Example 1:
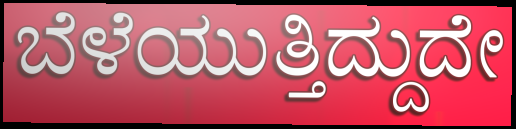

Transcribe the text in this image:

ಬೆಳೆಯುತ್ತಿದ್ದುದೇ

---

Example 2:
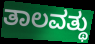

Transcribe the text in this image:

ತಾಲವತ್ಥು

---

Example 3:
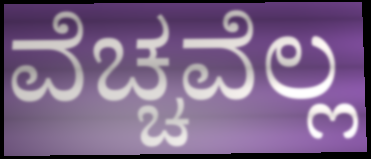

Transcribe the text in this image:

ವೆಚ್ಚವೆಲ್ಲ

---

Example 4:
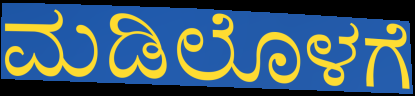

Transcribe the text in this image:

ಮಡಿಲೊಳಗೆ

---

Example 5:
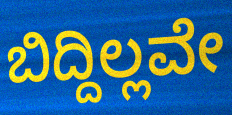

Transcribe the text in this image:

ಬಿದ್ದಿಲ್ಲವೇ